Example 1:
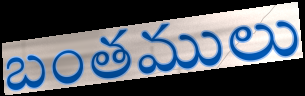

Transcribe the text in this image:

బంతములు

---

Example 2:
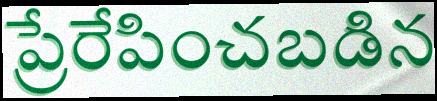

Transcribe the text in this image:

ప్రేరేపించబడిన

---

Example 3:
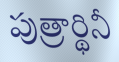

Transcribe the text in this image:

పుత్రార్థినీ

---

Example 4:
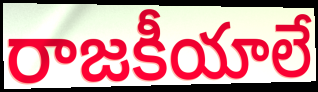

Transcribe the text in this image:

రాజకీయాలే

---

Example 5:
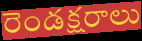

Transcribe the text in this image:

రెండక్షరాలు